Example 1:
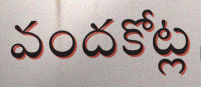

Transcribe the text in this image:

వందకోట్ల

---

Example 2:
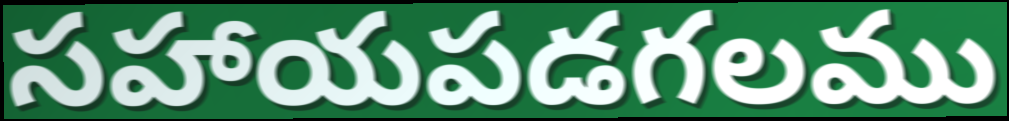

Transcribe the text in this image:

సహాయపడగలము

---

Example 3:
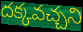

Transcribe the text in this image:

దక్కవచ్చని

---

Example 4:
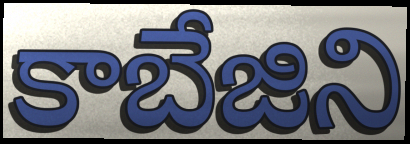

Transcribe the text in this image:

కాబేజిని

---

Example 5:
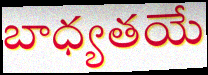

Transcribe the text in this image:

బాధ్యతయే